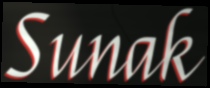
Sunak